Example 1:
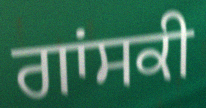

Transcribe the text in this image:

ਗਾਂਸਕੀ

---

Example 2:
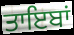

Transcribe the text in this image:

ਤਾਇਬਾਂ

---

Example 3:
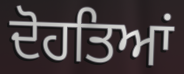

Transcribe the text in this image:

ਦੋਹਤਿਆਂ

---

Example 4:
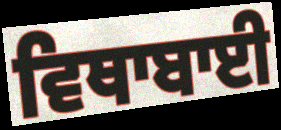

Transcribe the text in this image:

ਵਿਥਾਬਾਈ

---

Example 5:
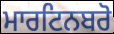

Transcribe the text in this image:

ਮਾਰਟਿਨਬਰੋ